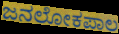
ಜನಲೋಕಪಾಲ